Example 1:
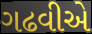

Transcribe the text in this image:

ગઢવીએ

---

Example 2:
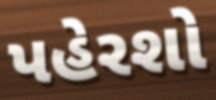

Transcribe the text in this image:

પહેરશો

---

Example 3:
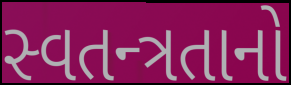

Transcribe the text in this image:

સ્વતન્ત્રતાનો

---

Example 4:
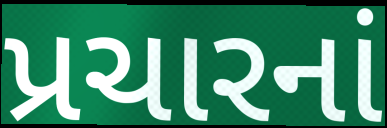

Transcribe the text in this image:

પ્રચારનાં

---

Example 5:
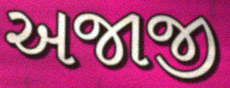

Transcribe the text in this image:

અજાજી